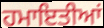
ਹਮਾਇਤੀਆਂ